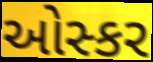
ઓસ્કર